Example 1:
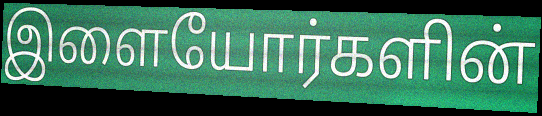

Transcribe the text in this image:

இளையோர்களின்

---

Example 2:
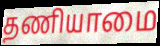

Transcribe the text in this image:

தணியாமை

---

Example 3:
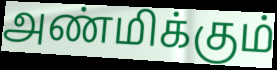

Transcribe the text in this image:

அண்மிக்கும்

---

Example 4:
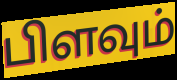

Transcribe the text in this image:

பிளவும்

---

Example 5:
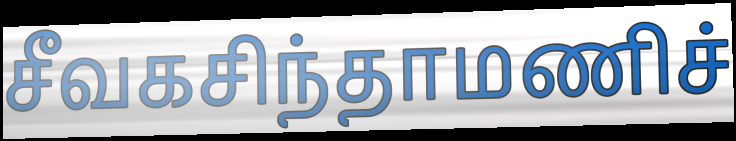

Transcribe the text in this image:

சீவகசிந்தாமணிச்